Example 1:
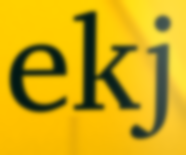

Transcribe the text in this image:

ekj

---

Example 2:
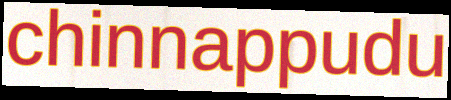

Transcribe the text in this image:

chinnappudu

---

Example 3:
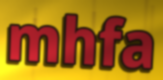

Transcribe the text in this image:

mhfa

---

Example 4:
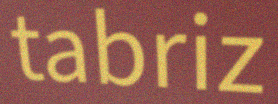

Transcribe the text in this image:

tabriz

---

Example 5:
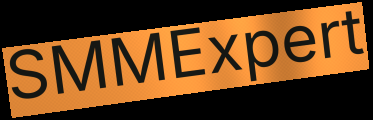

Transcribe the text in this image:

SMMExpert